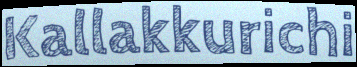
Kallakkurichi